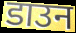
डाउन